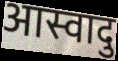
आस्वादु